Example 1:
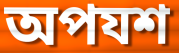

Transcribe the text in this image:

অপযশ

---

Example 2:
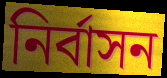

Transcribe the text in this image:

নিৰ্বাসন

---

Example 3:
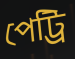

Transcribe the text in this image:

পেট্ৰি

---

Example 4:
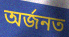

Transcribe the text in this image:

অৰ্জনত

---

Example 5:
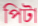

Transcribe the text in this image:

পিটা